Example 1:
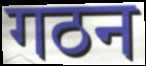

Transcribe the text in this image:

गठन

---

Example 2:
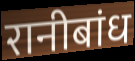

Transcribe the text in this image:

रानीबांध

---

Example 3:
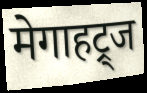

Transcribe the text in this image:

मेगाहट्र्ज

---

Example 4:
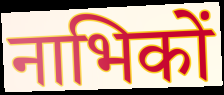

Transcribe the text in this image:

नाभिकों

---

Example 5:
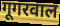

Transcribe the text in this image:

गूगरवाल